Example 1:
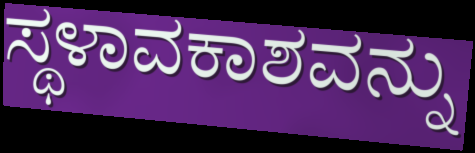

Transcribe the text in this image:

ಸ್ಥಳಾವಕಾಶವನ್ನು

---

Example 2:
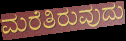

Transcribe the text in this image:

ಮರೆತಿರುವುದು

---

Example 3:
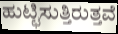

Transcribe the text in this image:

ಹುಟ್ಟಿಸುತ್ತಿರುತ್ತವೆ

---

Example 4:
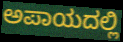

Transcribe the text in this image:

ಅಪಾಯದಲ್ಲಿ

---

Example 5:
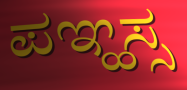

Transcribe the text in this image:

ಪಞ್ಹಸ್ಸ